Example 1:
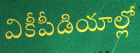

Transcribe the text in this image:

వికీపీడియాల్లో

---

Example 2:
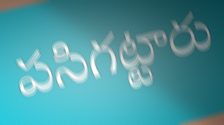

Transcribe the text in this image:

పసిగట్టారు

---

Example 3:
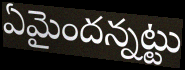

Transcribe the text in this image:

ఏమైందన్నట్టు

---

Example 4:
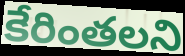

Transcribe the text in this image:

కేరింతలని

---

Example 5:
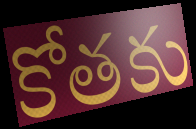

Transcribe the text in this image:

కోతకు